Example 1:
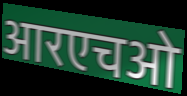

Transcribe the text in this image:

आरएचओ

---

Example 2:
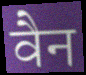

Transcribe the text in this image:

वैन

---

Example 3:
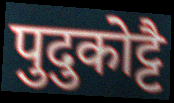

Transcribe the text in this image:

पुदुकोट्टै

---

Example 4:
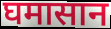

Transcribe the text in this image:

घमासान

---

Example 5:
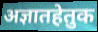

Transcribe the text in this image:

अज्ञातहेतुक